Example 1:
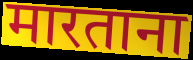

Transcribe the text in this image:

मारताना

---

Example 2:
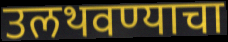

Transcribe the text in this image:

उलथवण्याचा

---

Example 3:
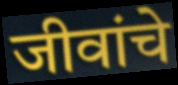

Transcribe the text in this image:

जीवांचे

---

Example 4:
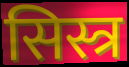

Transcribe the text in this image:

सिस्त्र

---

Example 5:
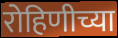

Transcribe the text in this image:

रोहिणीच्या